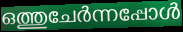
ഒത്തുചേർന്നപ്പോൾ